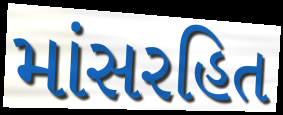
માંસરહિત